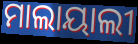
ମାଲାୟାଲୀ